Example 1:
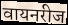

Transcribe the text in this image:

वायनरीज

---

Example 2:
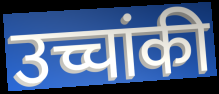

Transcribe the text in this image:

उच्चांकी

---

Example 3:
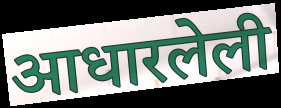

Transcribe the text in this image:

आधारलेली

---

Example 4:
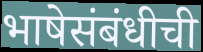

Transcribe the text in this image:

भाषेसंबंधीची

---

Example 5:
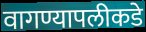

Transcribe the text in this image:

वागण्यापलीकडे